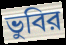
ভুবির